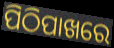
ପିଠିପାଖରେ